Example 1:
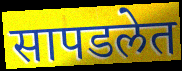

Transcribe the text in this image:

सापडलेत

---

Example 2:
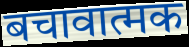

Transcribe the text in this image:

बचावात्मक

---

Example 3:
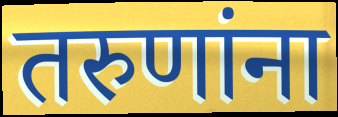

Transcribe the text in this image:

तरुणांना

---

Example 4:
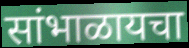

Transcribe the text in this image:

सांभाळायचा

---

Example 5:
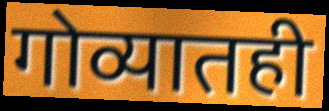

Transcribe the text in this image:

गोव्यातही